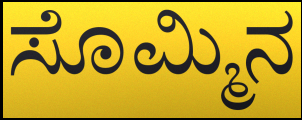
ಸೊಮ್ಮಿನ